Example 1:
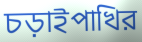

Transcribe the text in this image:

চড়াইপাখির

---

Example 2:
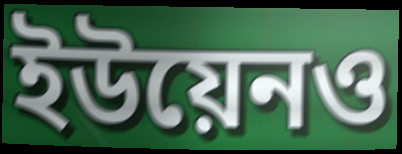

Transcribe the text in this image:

ইউয়েনও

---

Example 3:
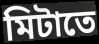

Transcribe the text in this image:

মিটাতে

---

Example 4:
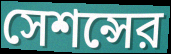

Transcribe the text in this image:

সেশন্সের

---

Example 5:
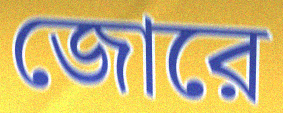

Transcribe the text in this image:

জোরে